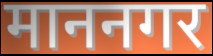
माननगर